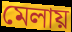
মেলায়